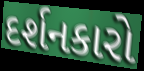
દર્શનકારો